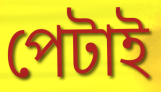
পেটাই